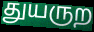
துயருற